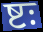
ष्टः